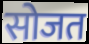
सोजत